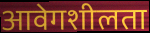
आवेगशीलता